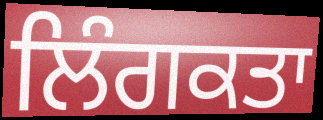
ਲਿੰਗਕਤਾ